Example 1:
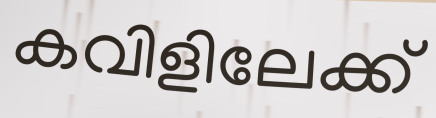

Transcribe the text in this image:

കവിളിലേക്ക്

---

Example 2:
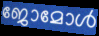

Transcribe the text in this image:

ജോമോൾ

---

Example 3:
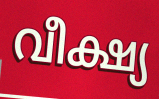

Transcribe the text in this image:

വീക്ഷ്യ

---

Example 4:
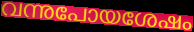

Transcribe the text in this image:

വന്നുപോയശേഷം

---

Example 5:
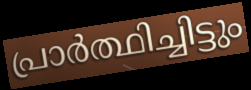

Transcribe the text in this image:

പ്രാർത്ഥിച്ചിട്ടും